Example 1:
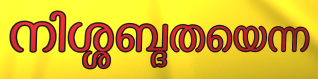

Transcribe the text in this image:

നിശ്ശബ്ദതയെന്ന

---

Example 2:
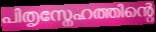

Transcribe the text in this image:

പിതൃസ്നേഹത്തിന്റെ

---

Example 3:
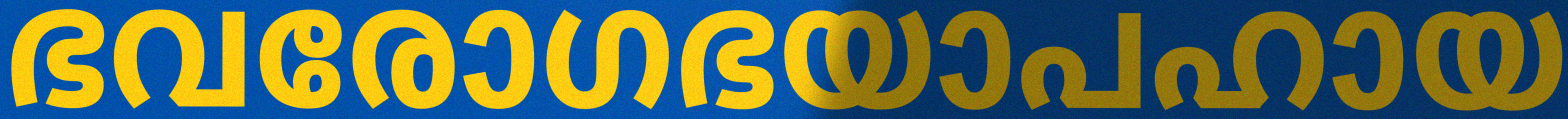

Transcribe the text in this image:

ഭവരോഗഭയാപഹായ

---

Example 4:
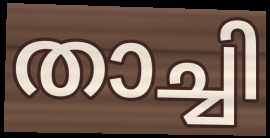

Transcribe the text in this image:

താച്ചി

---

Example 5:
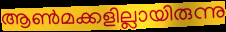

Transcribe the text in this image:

ആൺമക്കളില്ലായിരുന്നു